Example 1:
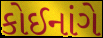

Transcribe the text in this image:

કોઈનાંગે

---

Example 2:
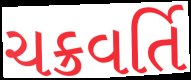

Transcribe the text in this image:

ચક્રવર્તિ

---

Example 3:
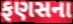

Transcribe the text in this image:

ફણસના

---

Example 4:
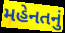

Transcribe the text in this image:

મહેનતનું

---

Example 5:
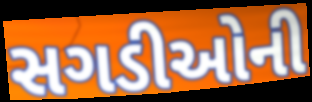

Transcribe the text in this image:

સગડીઓની